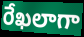
రేఖలాగా